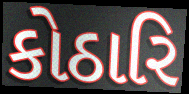
કોઠારિ